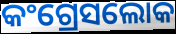
କଂଗ୍ରେସଲୋକ